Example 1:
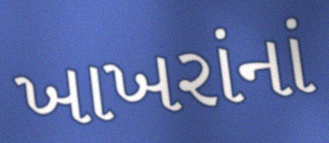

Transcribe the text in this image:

ખાખરાંનાં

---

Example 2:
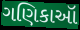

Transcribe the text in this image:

ગણિકાઑ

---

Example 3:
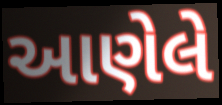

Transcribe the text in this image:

આણેલે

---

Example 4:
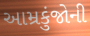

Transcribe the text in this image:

આમ્રકુંજોની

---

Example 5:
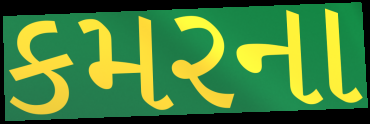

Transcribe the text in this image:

કમરના